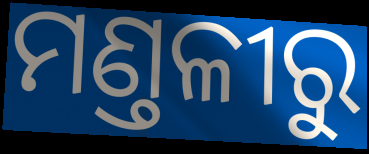
ମଣ୍ତଳୀରୁ